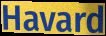
Havard